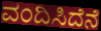
ವಂದಿಸಿದೆನೆ